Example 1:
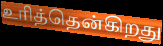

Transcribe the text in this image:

உரித்தென்கிறது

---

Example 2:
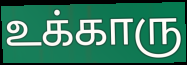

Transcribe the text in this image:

உக்காரு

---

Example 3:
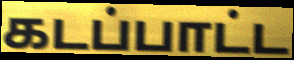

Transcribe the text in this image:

கடப்பாட்ட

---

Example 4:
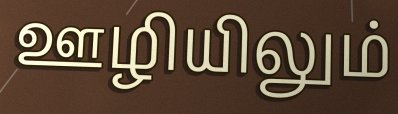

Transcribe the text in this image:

ஊழியிலும்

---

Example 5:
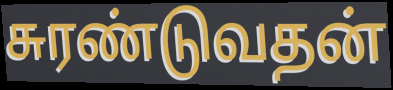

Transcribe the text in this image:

சுரண்டுவதன்